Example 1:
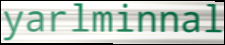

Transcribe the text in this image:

yarlminnal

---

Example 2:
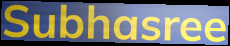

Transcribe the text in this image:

Subhasree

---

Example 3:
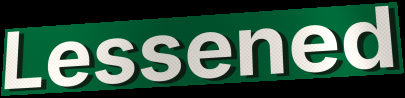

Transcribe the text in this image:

Lessened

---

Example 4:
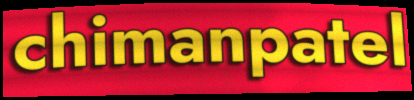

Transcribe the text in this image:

chimanpatel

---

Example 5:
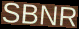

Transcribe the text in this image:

SBNR